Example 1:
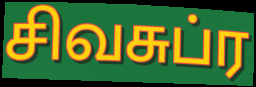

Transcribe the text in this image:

சிவசுப்ர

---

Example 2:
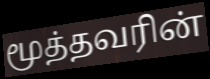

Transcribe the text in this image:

மூத்தவரின்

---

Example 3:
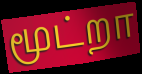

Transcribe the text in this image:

மூட்றா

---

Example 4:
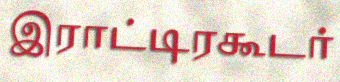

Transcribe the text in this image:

இராட்டிரகூடர்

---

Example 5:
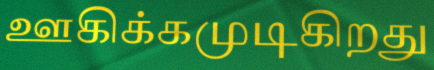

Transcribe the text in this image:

ஊகிக்கமுடிகிறது